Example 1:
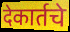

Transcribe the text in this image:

देकार्तचे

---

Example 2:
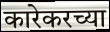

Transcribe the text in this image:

कारेकरच्या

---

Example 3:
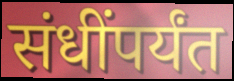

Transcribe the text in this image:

संधींपर्यंत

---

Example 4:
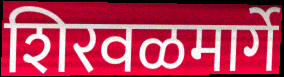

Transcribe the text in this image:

शिरवळमार्गे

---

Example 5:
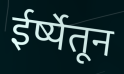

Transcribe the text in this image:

ईर्ष्येतून